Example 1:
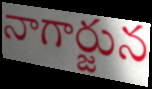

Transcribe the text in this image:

నాగార్జున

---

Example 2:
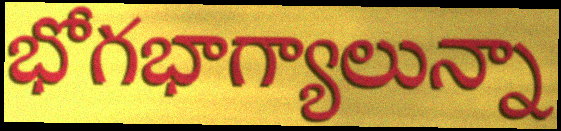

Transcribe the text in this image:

భోగభాగ్యాలున్నా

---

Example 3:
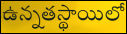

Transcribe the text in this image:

ఉన్నతస్థాయిలో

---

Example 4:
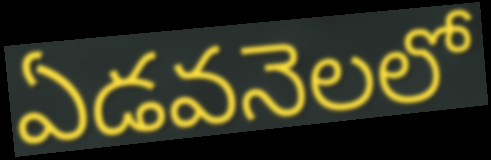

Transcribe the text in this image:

ఏడవనెలలో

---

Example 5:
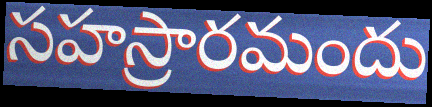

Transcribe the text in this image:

సహస్రారమందు